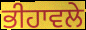
ਭੀਹਾਵਲੇ